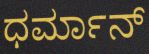
ಧರ್ಮಾನ್